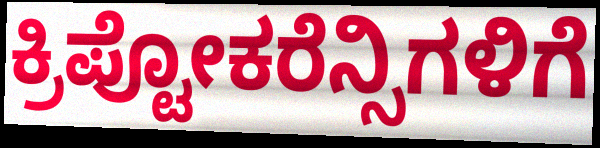
ಕ್ರಿಪ್ಟೋಕರೆನ್ಸಿಗಳಿಗೆ